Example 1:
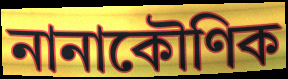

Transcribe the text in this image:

নানাকৌণিক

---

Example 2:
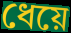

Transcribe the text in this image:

ধেয়ে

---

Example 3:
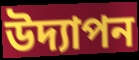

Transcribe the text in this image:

উদ্যাপন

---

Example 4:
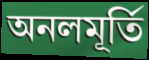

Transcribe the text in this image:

অনলমূর্তি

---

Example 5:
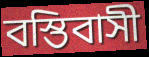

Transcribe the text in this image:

বস্তিবাসী